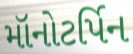
મૉનોટર્પિન